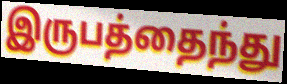
இருபத்தைந்து